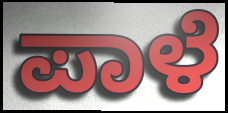
ಪಾಳೆ